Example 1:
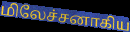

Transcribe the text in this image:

மிலேச்சனாகிய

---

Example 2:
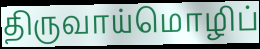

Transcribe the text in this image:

திருவாய்மொழிப்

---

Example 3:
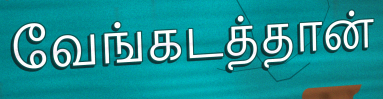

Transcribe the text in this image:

வேங்கடத்தான்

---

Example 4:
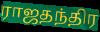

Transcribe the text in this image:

ராஜதந்திர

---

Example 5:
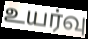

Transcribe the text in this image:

உயர்வு